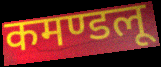
कमण्डलू